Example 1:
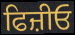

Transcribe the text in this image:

ਫਿਜ਼ੀਓ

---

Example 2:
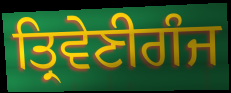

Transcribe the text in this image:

ਤ੍ਰਿਵੇਣੀਗੰਜ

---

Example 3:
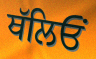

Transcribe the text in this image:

ਥੱਲਿਓਂ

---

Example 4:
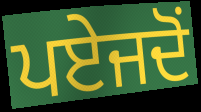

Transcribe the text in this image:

ਪਏਜਦੋਂ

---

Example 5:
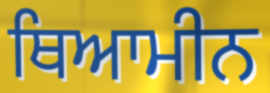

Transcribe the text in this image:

ਥਿਆਮੀਨ